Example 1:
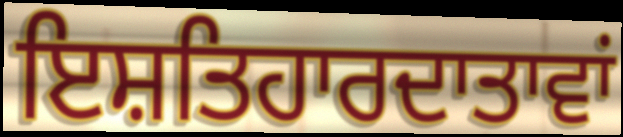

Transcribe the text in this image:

ਇਸ਼ਤਿਹਾਰਦਾਤਾਵਾਂ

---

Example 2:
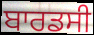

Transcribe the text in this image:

ਬਾਰਡਸੀ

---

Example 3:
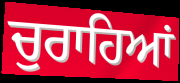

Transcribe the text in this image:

ਚੁਰਾਹਿਆਂ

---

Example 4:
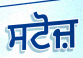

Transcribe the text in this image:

ਸਟੋਜ਼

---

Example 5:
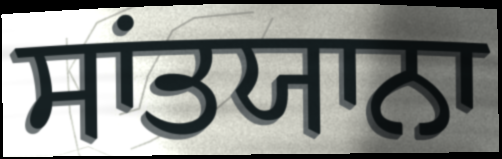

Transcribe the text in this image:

ਸਾਂਤਯਾਨਾ